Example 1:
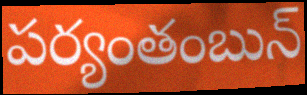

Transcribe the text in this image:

పర్యంతంబున్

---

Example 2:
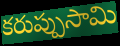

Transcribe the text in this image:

కరుప్పుసామి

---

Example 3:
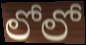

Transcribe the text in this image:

లోలో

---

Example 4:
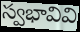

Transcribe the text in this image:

స్వభావివి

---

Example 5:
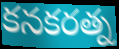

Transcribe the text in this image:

కనకరత్న